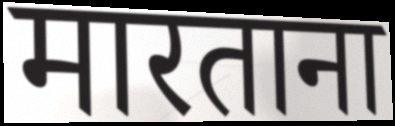
मारताना